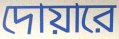
দোয়ারে